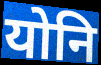
योनि